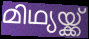
മിഥ്യയ്ക്ക്